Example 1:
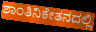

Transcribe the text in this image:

ಶಾಂತಿನಿಕೇತನದಲ್ಲಿ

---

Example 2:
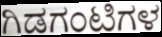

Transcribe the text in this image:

ಗಿಡಗಂಟಿಗಳ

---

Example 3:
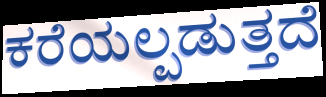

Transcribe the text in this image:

ಕರೆಯಲ್ಪಡುತ್ತದೆ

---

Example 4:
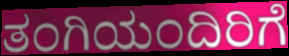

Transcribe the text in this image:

ತಂಗಿಯಂದಿರಿಗೆ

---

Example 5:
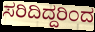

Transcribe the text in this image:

ಸರಿದಿದ್ದರಿಂದ